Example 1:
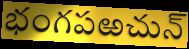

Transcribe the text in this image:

భంగపఱచున్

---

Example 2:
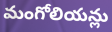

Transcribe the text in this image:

మంగోలియన్లు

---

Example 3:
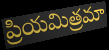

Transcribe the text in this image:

ప్రియమిత్రమా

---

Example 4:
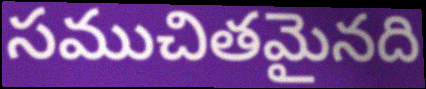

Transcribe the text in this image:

సముచితమైనది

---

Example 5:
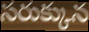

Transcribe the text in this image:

సరుక్కున